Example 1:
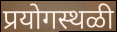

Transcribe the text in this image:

प्रयोगस्थळी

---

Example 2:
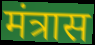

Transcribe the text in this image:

मंत्रास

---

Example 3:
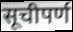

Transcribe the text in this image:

सूचीपर्ण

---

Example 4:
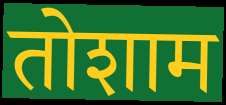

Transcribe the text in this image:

तोशाम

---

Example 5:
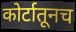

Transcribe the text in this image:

कोर्टातूनच